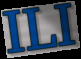
ILI